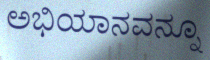
ಅಭಿಯಾನವನ್ನೂ